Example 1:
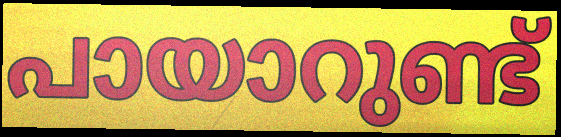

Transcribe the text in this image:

പായാറുണ്ട്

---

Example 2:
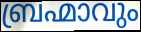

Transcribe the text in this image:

ബ്രഹ്മാവും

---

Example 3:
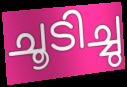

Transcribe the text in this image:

ചൂടിച്ചു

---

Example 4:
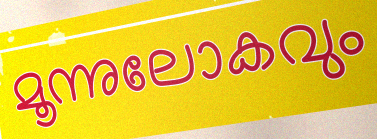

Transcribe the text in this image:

മൂന്നുലോകവും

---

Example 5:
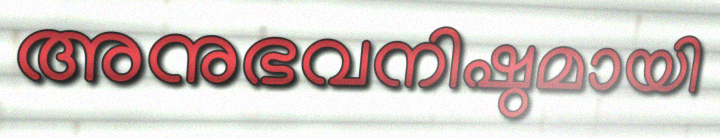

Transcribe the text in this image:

അനുഭവനിഷ്ഠമായി